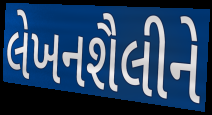
લેખનશૈલીને